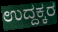
ಉದ್ದಕ್ಕರ